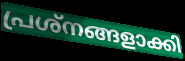
പ്രശ്നങ്ങളാക്കി